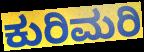
ಕುರಿಮರಿ